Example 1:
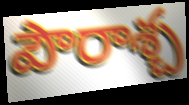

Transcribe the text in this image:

పౌరాశ్చ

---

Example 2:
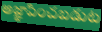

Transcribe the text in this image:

అజ్ఞాపించబడుట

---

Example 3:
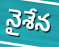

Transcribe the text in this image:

నైశేన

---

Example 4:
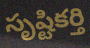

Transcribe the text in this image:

సృష్టికర్తి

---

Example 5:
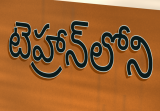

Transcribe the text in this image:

టెహ్రాన్‌లోని